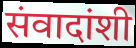
संवादांशी